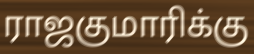
ராஜகுமாரிக்கு